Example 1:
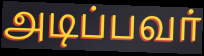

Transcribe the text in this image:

அடிப்பவர்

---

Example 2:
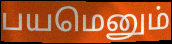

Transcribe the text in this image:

பயமெனும்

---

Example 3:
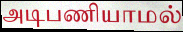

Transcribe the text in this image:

அடிபணியாமல்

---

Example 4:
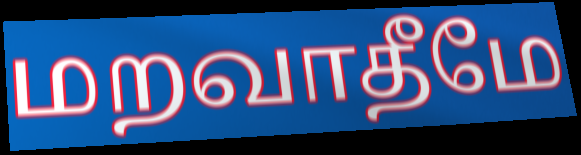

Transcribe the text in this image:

மறவாதீமே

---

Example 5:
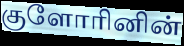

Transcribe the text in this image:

குளோரினின்